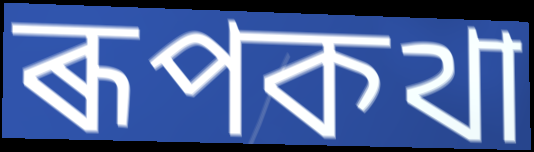
ৰূপকথা